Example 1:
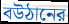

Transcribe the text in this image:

বউঠানের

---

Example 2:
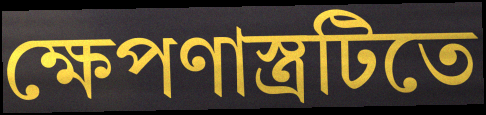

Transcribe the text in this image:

ক্ষেপণাস্ত্রটিতে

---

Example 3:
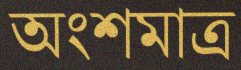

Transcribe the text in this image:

অংশমাত্র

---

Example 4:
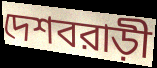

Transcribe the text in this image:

দেশবরাড়ী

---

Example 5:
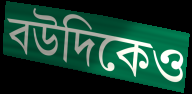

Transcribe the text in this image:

বউদিকেও